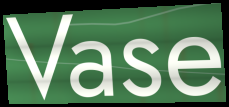
Vase